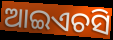
ଆଇଏଚସି